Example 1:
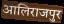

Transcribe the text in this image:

आलिराजपुर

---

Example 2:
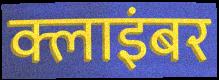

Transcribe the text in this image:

क्लाइंबर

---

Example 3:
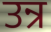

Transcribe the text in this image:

उन्र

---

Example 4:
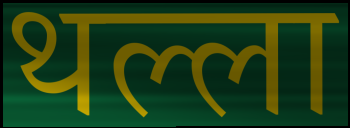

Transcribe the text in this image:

थल्ला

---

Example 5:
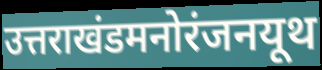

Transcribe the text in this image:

उत्तराखंडमनोरंजनयूथ